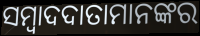
ସମ୍ବାଦଦାତାମାନଙ୍କର